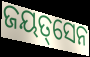
ଜୟତ୍‌ସେନ